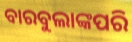
ବାରବୁଲାଙ୍କପରି